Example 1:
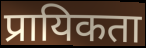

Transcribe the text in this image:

प्रायिकता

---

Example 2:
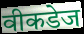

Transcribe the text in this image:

वीकडेज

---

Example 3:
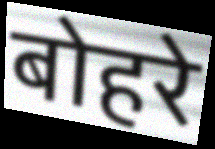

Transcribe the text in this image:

बोहरे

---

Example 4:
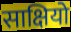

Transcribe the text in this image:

साक्षियो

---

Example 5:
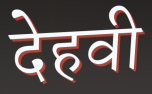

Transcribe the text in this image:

देहवी